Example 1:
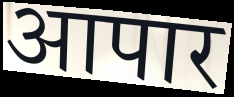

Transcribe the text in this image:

आपार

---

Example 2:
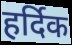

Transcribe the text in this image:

हर्दिक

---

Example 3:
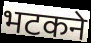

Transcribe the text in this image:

भटकने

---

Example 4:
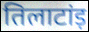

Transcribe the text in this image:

तिलाटांड़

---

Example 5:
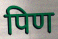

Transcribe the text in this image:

पिण